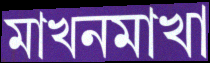
মাখনমাখা